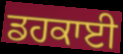
ਡਹਕਾਈ